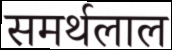
समर्थलाल